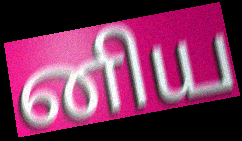
னிய